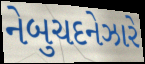
નેબુચદનેઝારે